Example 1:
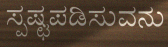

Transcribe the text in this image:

ಸ್ಪಷ್ಟಪಡಿಸುವನು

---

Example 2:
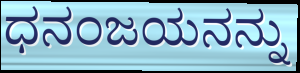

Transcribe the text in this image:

ಧನಂಜಯನನ್ನು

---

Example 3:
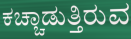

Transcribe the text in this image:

ಕಚ್ಚಾಡುತ್ತಿರುವ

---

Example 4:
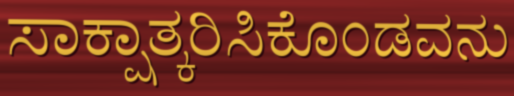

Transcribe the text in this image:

ಸಾಕ್ಷಾತ್ಕರಿಸಿಕೊಂಡವನು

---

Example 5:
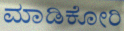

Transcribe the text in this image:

ಮಾಡಿಕೋರಿ